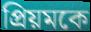
প্রিয়মকে